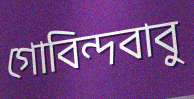
গোবিন্দবাবু